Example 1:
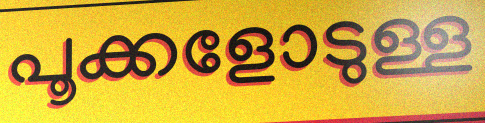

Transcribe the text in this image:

പൂക്കളോടുള്ള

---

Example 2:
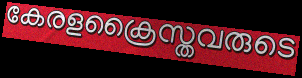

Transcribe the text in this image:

കേരളക്രൈസ്തവരുടെ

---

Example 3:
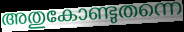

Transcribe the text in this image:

അതുകോണ്ടുതന്നെ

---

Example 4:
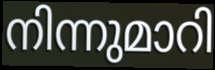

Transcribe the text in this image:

നിന്നുമാറി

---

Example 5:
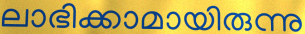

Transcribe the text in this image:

ലാഭിക്കാമായിരുന്നു